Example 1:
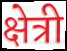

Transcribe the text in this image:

क्षेत्री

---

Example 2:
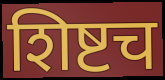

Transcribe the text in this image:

शिष्टच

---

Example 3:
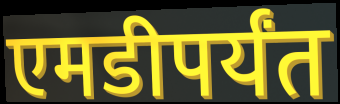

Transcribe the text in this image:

एमडीपर्यंत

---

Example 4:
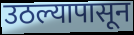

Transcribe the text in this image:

उठल्यापासून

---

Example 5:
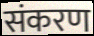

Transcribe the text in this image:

संकरण